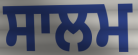
ਸਾਲਮ